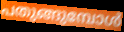
പതുങ്ങുമ്പോൾ